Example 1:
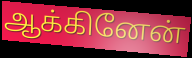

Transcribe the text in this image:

ஆக்கினேன்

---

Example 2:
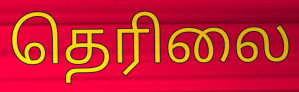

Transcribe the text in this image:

தெரிலை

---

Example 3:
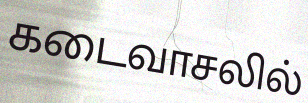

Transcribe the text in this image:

கடைவாசலில்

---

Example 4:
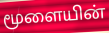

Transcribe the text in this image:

மூளையின்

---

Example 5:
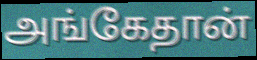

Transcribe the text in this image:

அங்கேதான்